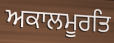
ਅਕਾਲਮੂਰਤਿ